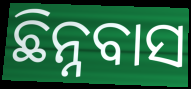
ଛିନ୍ନବାସ